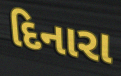
દિનારા